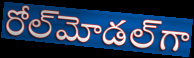
రోల్‌మోడల్‌గా